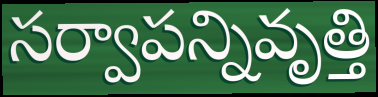
సర్వాపన్నివృత్తి